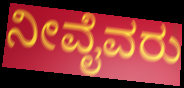
ನೀವೈವರು